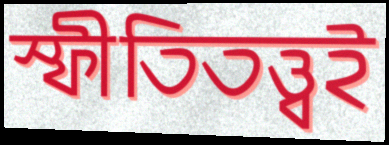
স্ফীতিতত্ত্বই